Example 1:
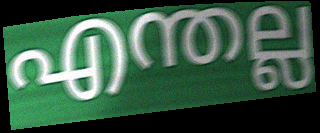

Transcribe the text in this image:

എന്തല്ല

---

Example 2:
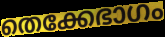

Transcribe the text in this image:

തെക്കേഭാഗം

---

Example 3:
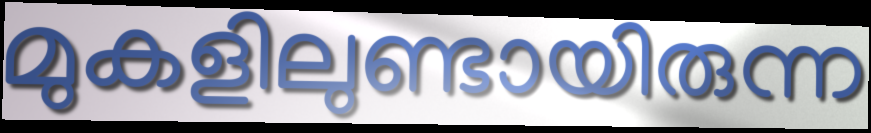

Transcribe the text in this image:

മുകളിലുണ്ടായിരുന്ന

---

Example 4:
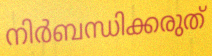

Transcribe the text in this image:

നിർബന്ധിക്കരുത്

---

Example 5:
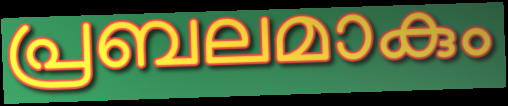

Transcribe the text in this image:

പ്രബലമാകും